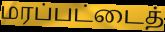
மரப்பட்டைத்